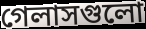
গেলাসগুলো